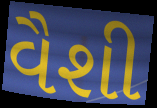
વૈશી